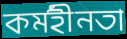
কৰ্মহীনতা